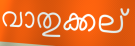
വാതുക്കല്